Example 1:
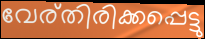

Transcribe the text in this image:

വേര്തിരിക്കപ്പെട്ടു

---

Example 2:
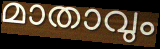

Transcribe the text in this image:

മാതാവും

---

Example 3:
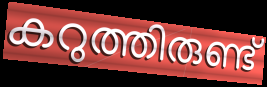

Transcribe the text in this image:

കറുത്തിരുണ്ട്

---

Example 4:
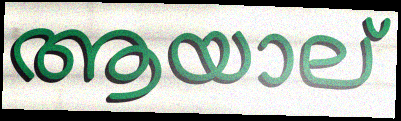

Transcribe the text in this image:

ആയാല്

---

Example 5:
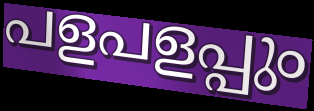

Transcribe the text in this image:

പളപളപ്പും